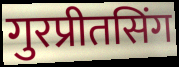
गुरप्रीतसिंग